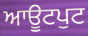
ਆਊਟਪੁਟ